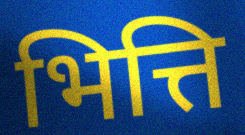
भित्ति